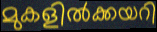
മുകളിൽക്കയറി